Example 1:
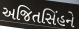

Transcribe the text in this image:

અજિતસિંહને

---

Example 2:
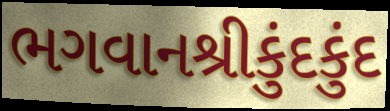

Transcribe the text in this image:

ભગવાનશ્રીકુંદકુંદ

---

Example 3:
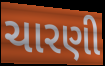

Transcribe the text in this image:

ચારણી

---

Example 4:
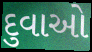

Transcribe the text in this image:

દુવાઓ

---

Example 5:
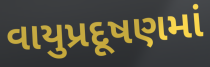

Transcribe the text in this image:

વાયુપ્રદૂષણમાં